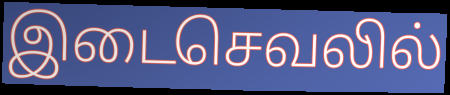
இடைசெவலில்